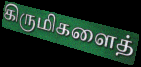
கிருமிகளைத்